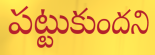
పట్టుకుందని